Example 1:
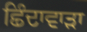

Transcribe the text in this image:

ਛਿੰਦਾਵਾੜਾ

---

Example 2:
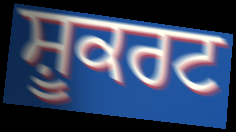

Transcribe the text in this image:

ਸ਼ੂਕਰਟ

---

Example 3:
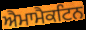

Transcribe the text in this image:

ਐਮਾਮੈਕਟਿਨ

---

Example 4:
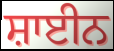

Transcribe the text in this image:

ਸ਼ਾਈਨ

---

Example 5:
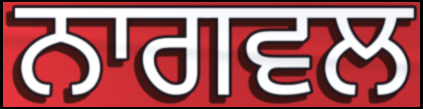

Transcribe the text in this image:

ਨਾਗਵਲ